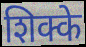
शिक्के